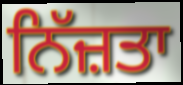
ਨਿੱਜ਼ਤਾ